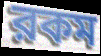
রকম